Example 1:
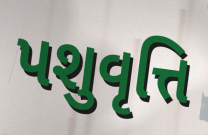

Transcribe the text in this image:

પશુવૃત્તિ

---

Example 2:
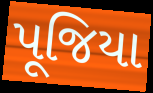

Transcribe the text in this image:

પૂજિયા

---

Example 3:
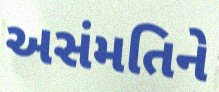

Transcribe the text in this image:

અસંમતિને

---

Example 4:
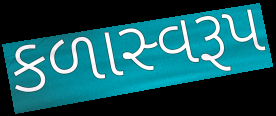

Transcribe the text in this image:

કળાસ્વરૂપ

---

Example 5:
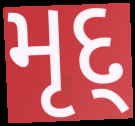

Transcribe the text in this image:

મૃદ્